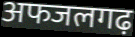
अफजलगढ़